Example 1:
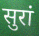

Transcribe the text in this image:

सुरां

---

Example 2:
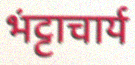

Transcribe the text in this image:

भंट्टाचार्य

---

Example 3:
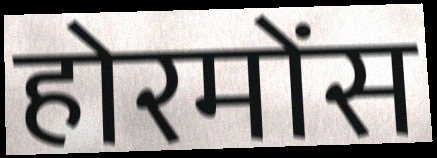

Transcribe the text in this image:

होरमोंस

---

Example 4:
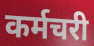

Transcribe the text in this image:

कर्मचरी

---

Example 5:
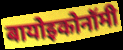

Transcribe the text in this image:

बायोइकोनॉमी